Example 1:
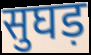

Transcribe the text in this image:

सुघड़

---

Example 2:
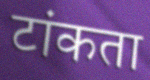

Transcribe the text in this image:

टांकता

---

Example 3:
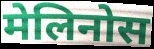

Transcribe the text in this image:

मेलिनोस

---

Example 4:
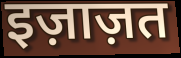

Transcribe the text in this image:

इज़ाज़त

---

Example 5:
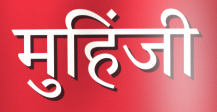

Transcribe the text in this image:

मुहिंजी